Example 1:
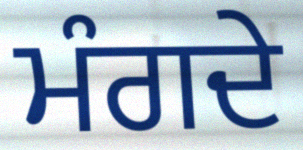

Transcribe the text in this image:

ਮੰਗਦੇ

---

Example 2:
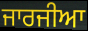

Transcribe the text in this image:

ਜਾਰਜੀਆ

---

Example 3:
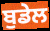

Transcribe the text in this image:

ਬੁਡੇਲ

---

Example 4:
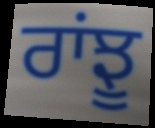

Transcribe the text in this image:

ਰਾਂਝੂ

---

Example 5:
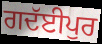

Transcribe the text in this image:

ਗਦੱਈਪੁਰ